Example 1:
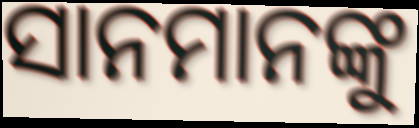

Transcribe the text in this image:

ସାନମାନଙ୍କୁ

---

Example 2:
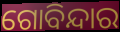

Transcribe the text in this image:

ଗୋବିନ୍ଦାର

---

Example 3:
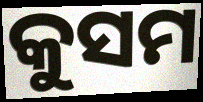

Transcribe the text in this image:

କୁସମ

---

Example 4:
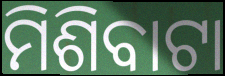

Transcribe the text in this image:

ମିଶିବାଟା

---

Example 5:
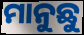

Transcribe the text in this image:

ମାନୁଛୁ